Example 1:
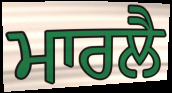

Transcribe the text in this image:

ਮਾਰਲੈ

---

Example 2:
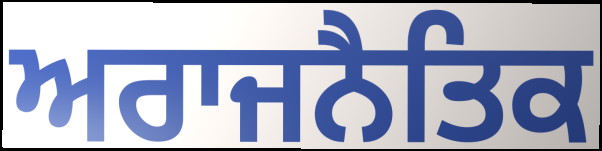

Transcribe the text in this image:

ਅਰਾਜਨੈਤਿਕ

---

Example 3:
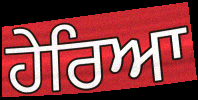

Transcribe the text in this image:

ਹੇਰਿਆ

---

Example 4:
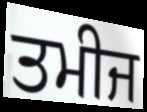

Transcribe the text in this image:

ਤਮੀਜ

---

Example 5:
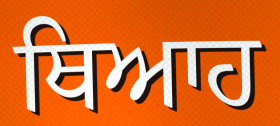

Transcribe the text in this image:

ਥਿਆਹ